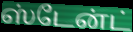
ஸ்டேன்ட்